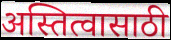
अस्तित्वासाठी